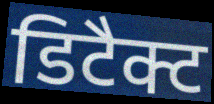
डिटैक्ट